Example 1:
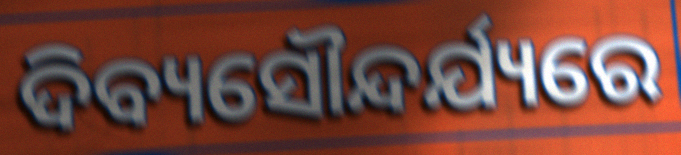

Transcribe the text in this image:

ଦିବ୍ୟସୌନ୍ଦର୍ଯ୍ୟରେ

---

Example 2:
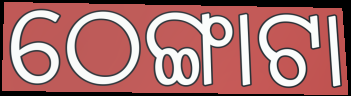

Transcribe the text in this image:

ଠେଙ୍ଗାଟା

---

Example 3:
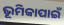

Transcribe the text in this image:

ଭୂମିକାପାଇଁ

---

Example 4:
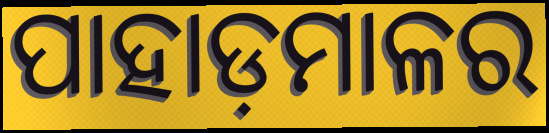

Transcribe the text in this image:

ପାହାଡ଼ମାଳର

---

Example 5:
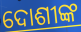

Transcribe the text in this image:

ଦୋଶୀଙ୍କ